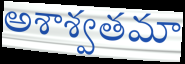
అశాశ్వతమా